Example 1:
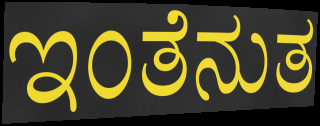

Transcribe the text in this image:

ಇಂತೆನುತ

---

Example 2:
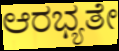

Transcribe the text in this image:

ಆರಭ್ಯತೇ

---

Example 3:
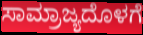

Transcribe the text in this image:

ಸಾಮ್ರಾಜ್ಯದೊಳಗೆ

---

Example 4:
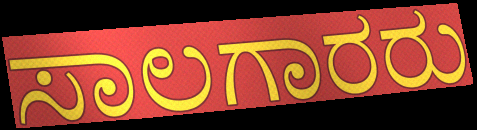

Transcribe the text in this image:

ಸಾಲಗಾರರು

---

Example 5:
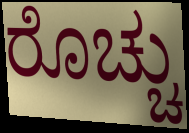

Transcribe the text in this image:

ರೊಚ್ಚು